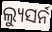
ଲ୍ୟୁସର୍ନ